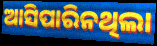
ଆସିପାରିନଥିଲା